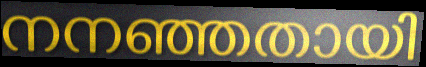
നനഞ്ഞതായി